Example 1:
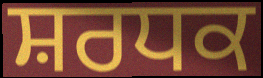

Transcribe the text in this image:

ਸ਼ਰਧਕ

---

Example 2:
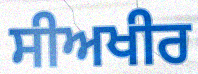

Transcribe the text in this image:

ਸੀਅਖੀਰ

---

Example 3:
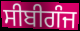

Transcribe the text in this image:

ਸੀਬੀਗੰਜ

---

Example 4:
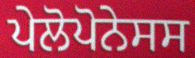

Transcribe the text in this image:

ਪੇਲੋਪੋਨੇਸਸ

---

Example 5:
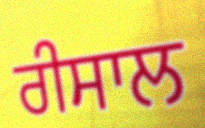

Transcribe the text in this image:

ਰੀਸਾਲ